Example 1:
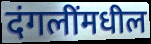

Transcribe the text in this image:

दंगलींमधील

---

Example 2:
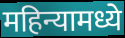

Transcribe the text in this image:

महिन्यामध्ये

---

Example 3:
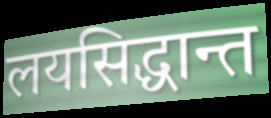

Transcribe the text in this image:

लयसिद्धान्त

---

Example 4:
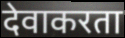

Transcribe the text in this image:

देवाकरता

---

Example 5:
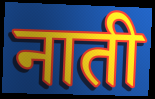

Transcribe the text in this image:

नाती